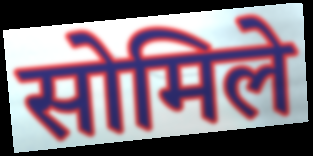
सोमिले